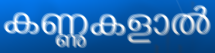
കണ്ണുകളാൽ